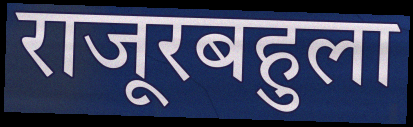
राजूरबहुला